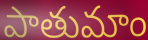
పాతుమాం